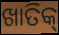
ଖାତିକ୍